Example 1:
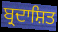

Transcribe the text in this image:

ਬ੍ਰਦਾਸ਼ਿਤ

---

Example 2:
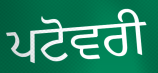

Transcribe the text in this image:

ਪਟੋਵਰੀ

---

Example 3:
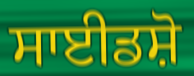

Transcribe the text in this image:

ਸਾਈਡਸ਼ੋ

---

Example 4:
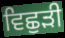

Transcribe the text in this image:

ਵਿਛੁੜੀ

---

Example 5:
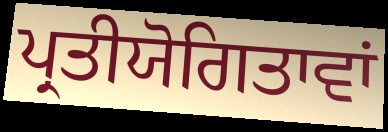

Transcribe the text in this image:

ਪ੍ਰਤੀਯੋਗਿਤਾਵਾਂ